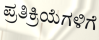
ಪ್ರತಿಕ್ರಿಯೆಗಳಿಗೆ